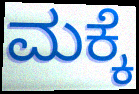
ಮಕ್ಕೆ